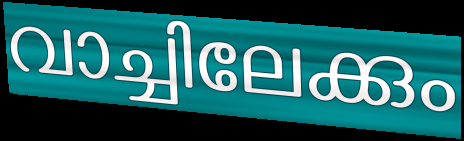
വാച്ചിലേക്കും